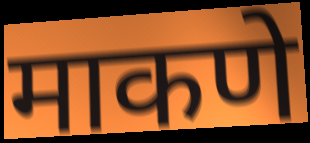
माकणे